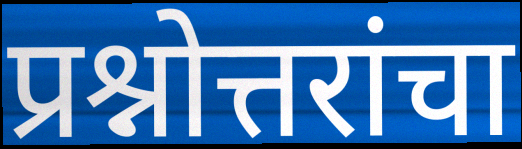
प्रश्नोत्तरांचा